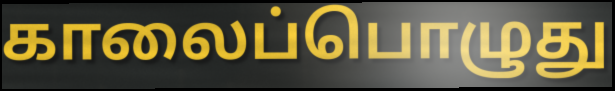
காலைப்பொழுது